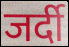
जर्दी